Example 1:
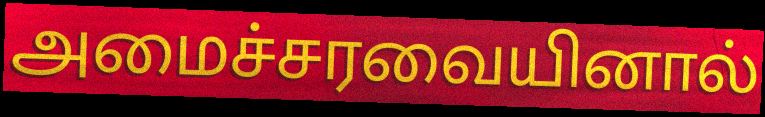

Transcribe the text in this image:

அமைச்சரவையினால்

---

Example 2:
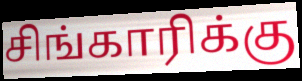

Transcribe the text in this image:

சிங்காரிக்கு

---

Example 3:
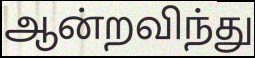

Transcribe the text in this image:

ஆன்றவிந்து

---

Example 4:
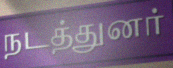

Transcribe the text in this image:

நடத்துனர்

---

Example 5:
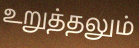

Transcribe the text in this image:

உறுத்தலும்